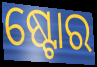
ଷ୍ଟୋର